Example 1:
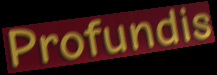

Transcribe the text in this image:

Profundis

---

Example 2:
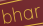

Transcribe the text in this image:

bhar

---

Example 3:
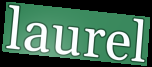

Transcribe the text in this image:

laurel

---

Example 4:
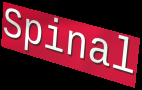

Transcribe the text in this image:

Spinal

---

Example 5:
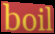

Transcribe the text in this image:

boil